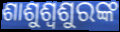
ଶାଶୁଶ୍ୱଶୁରଙ୍କ